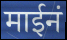
माईनं